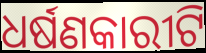
ଧର୍ଷଣକାରୀଟି